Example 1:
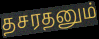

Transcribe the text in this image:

தசரதனும்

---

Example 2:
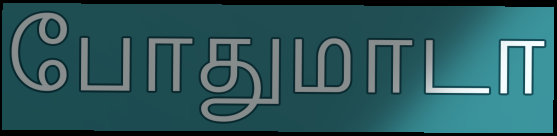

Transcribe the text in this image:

போதுமாடா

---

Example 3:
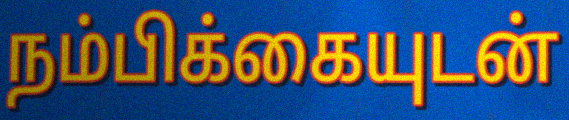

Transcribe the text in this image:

நம்பிக்கையுடன்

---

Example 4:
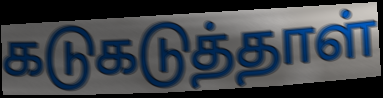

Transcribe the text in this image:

கடுகடுத்தாள்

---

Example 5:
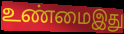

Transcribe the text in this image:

உண்மைஇது